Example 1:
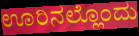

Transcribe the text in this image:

ಊರಿನಲ್ಲೊಂದು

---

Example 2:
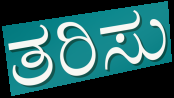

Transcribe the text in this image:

ತರಿಸು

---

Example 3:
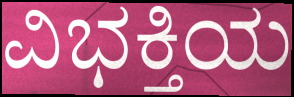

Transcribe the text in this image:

ವಿಭಕ್ತಿಯ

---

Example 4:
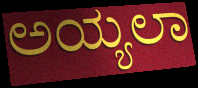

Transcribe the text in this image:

ಅಯ್ಯಲಾ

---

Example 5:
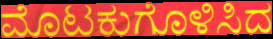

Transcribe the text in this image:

ಮೊಟಕುಗೊಳಿಸಿದ